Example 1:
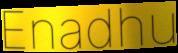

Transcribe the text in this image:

Enadhu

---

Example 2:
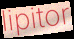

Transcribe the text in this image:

lipitor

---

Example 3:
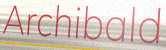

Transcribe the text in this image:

Archibald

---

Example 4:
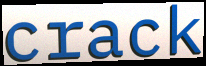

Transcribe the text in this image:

crack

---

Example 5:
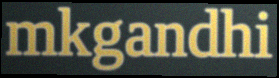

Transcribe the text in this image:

mkgandhi